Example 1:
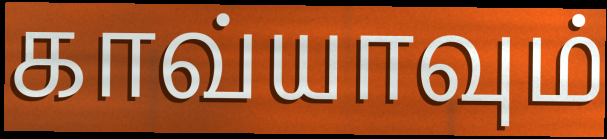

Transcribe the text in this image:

காவ்யாவும்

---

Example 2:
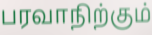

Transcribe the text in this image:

பரவாநிற்கும்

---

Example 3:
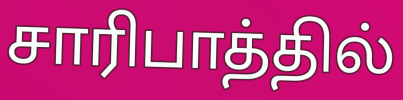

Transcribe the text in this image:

சாரிபாத்தில்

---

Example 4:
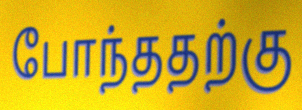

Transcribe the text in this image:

போந்ததற்கு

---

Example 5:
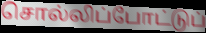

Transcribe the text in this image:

சொல்லிப்போட்டுப்